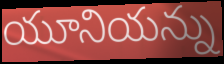
యూనియన్ను